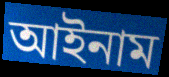
আইনাম